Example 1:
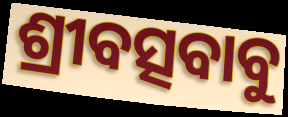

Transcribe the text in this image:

ଶ୍ରୀବତ୍ସବାବୁ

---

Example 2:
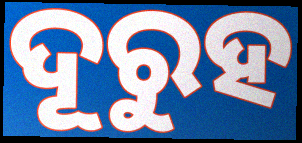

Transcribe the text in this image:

ଦୂରୁହ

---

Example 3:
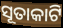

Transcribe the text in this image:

ସୂତାକାଟି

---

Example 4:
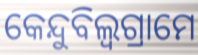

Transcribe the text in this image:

କେନ୍ଦୁବିଲ୍ଵଗ୍ରାମେ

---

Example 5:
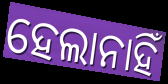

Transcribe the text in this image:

ହେଲାନାହିଁ